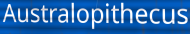
Australopithecus